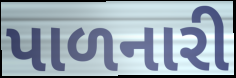
પાળનારી